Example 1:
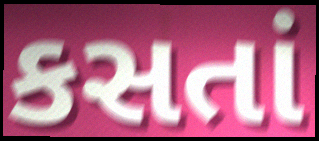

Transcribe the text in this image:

કસતાં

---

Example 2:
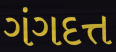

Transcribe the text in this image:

ગંગદત્ત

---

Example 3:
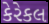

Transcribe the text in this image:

કેરેકલ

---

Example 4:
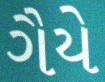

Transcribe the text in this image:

ગૈયે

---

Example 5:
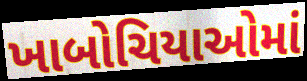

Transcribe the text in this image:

ખાબોચિયાઓમાં